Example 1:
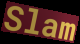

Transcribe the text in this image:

Slam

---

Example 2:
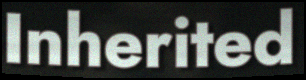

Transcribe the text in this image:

Inherited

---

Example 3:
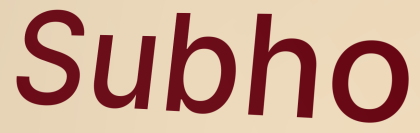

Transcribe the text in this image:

Subho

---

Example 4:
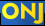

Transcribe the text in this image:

ONJ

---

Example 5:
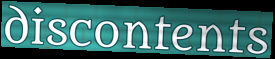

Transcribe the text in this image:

discontents